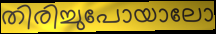
തിരിച്ചുപോയാലോ